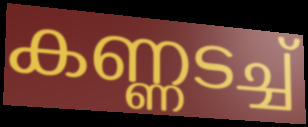
കണ്ണടച്ച്